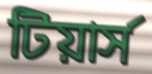
টিয়ার্স